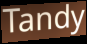
Tandy